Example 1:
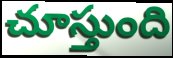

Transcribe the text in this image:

చూస్తుంది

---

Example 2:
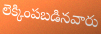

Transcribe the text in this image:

లెక్కింపబడినవారు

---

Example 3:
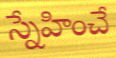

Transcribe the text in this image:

స్నేహించే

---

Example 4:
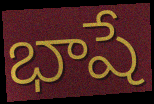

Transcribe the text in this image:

భాషే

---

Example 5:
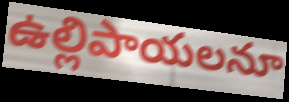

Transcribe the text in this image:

ఉల్లిపాయలనూ